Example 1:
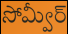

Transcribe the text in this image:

సోమ్వీర్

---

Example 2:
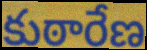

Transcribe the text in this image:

కుఠారేణ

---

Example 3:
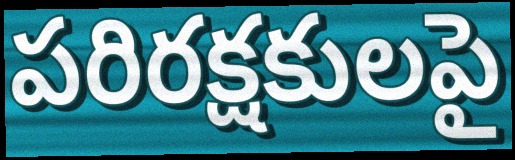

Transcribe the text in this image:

పరిరక్షకులపై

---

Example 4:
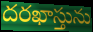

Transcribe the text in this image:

దరఖాస్తును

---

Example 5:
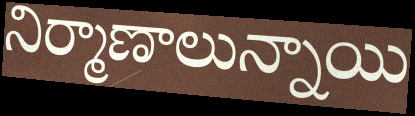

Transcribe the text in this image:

నిర్మాణాలున్నాయి